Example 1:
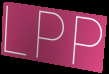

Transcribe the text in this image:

LPP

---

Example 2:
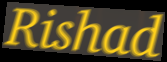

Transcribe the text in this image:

Rishad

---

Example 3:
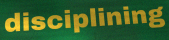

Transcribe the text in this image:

disciplining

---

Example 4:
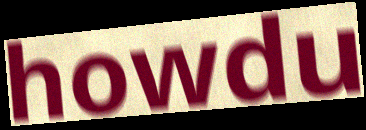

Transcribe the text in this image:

howdu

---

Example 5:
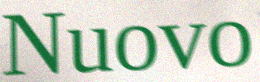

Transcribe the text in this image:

Nuovo